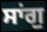
ਸਾਂਗੁ